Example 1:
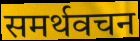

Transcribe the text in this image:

समर्थवचन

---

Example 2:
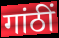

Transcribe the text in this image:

गांठीं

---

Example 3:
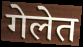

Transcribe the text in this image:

गेलेत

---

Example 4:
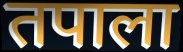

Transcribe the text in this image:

तपाला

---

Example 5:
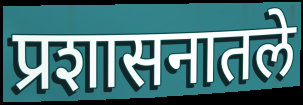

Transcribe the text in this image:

प्रशासनातले